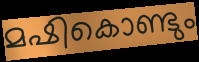
മഷികൊണ്ടും